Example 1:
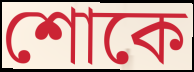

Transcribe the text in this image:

শোকে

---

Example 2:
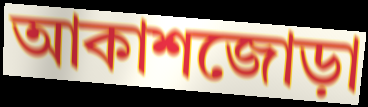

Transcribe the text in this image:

আকাশজোড়া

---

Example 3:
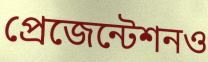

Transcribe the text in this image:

প্রেজেন্টেশনও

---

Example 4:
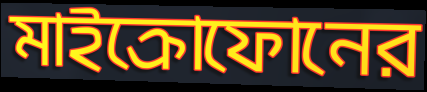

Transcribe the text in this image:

মাইক্রোফোনের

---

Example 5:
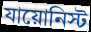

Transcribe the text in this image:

যায়োনিস্ট